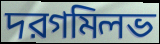
দরগমিলভ